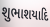
શુભાશયાદિ